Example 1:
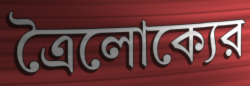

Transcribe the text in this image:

ত্রৈলোক্যের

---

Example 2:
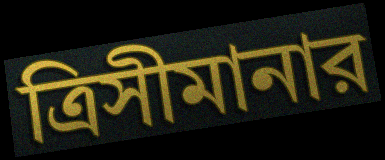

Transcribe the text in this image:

ত্রিসীমানার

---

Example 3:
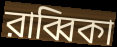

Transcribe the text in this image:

রাব্বিকা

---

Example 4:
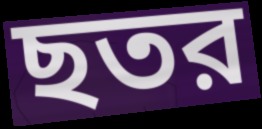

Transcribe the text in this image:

ছতর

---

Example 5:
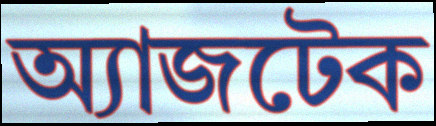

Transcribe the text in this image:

অ্যাজটেক